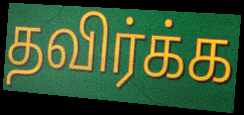
தவிர்க்க